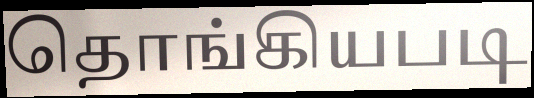
தொங்கியபடி